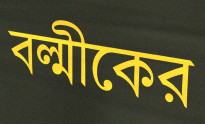
বল্মীকের